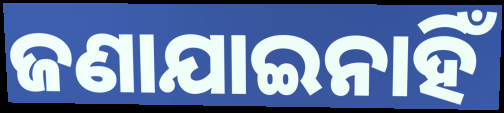
ଜଣାଯାଇନାହିଁ